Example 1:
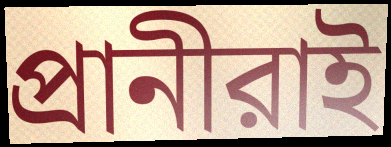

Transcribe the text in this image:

প্রানীরাই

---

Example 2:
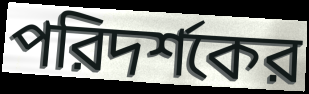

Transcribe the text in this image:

পরিদর্শকের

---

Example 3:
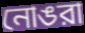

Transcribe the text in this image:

নোঙরা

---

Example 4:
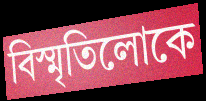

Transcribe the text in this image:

বিস্মৃতিলোকে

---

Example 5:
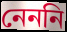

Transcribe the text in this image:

নেননি